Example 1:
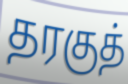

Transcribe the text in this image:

தரகுத்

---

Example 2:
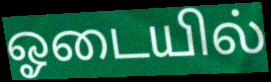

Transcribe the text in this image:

ஓடையில்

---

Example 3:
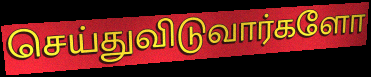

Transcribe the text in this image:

செய்துவிடுவார்களோ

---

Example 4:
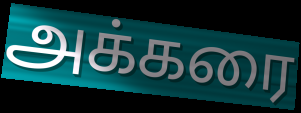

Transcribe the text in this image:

அக்கரை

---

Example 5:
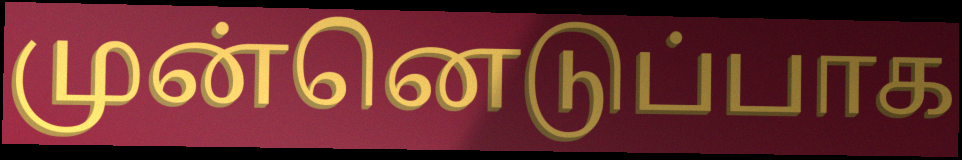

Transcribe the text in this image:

முன்னெடுப்பாக